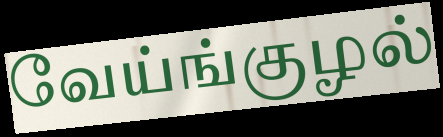
வேய்ங்குழல்